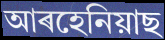
আৰহেনিয়াছ